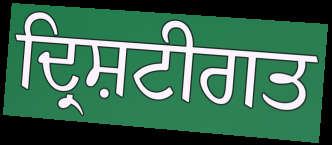
ਦ੍ਰਿਸ਼ਟੀਗਤ